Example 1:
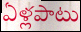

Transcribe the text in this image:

ఏళ్లపాటు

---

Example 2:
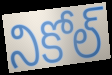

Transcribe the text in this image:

నికోల్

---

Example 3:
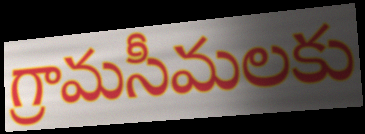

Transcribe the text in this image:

గ్రామసీమలకు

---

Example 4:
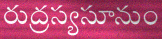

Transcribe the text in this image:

రుద్రస్యసూనుం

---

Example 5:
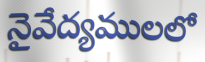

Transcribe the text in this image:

నైవేద్యములలో